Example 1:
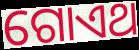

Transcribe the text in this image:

ଗୋଏଥ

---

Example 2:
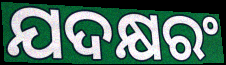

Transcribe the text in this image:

ଯଦକ୍ଷରଂ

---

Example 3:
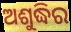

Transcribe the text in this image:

ଅଶୁଦ୍ଧିର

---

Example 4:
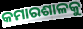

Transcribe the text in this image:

କମାରଶାଳକୁ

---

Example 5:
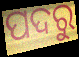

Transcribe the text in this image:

ପଦରୁ